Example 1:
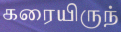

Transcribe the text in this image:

கரையிருந்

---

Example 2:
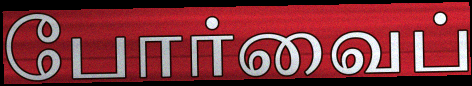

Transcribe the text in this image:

போர்வைப்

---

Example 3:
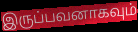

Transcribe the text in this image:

இருப்பவனாகவும்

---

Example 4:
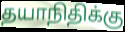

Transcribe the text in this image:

தயாநிதிக்கு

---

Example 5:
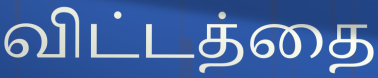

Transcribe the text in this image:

விட்டத்தை